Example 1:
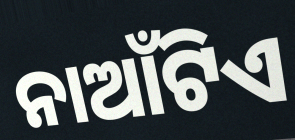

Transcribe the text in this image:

ନାଆଁଟିଏ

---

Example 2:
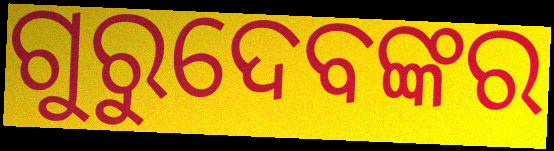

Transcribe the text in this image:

ଗୁରୁଦେବଙ୍କର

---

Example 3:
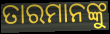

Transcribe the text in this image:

ତାରମାନଙ୍କୁ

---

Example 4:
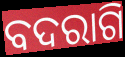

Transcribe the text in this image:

ବଦରାଗି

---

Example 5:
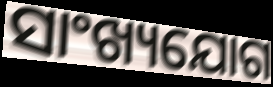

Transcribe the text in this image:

ସାଂଖ୍ୟଯୋଗ